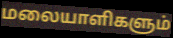
மலையாளிகளும்